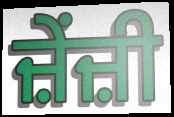
ਜ਼ੇਂਜ਼ੀ